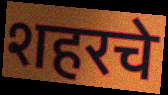
शहरचे